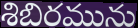
శిబిరమును